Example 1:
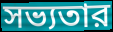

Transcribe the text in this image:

সভ্যতার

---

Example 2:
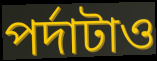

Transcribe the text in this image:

পর্দাটাও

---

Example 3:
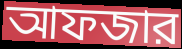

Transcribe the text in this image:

আফজার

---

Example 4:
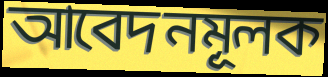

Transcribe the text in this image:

আবেদনমূলক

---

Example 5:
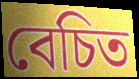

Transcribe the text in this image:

বেচিত